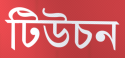
টিউচন